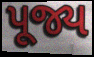
પૂજ્ય